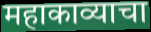
महाकाव्याचा